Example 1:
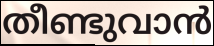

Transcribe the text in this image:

തീണ്ടുവാൻ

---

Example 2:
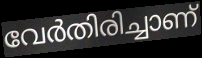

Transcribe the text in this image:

വേർതിരിച്ചാണ്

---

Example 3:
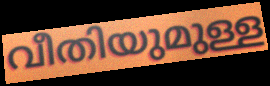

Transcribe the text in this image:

വീതിയുമുള്ള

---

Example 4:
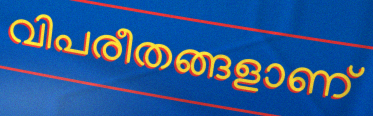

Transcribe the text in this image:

വിപരീതങ്ങളാണ്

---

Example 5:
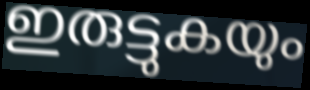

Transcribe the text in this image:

ഇരുട്ടുകയും